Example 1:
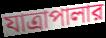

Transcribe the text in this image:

যাত্রাপালার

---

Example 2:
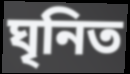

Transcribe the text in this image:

ঘৃনিত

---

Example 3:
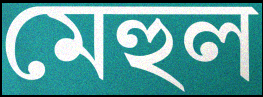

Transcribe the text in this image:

মেহুল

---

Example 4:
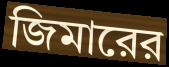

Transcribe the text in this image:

জিমারের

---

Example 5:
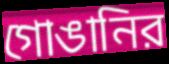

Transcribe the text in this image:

গোঙানির